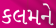
કલમને